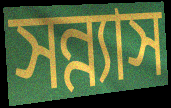
সন্ন্যাস